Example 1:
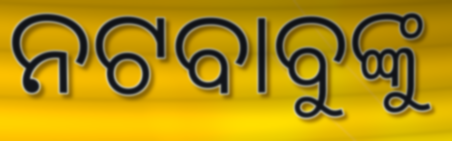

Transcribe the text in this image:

ନଟବାବୁଙ୍କୁ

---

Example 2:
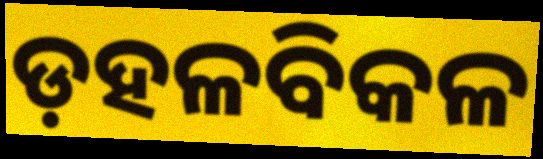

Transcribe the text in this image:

ଡ଼ହଳବିକଳ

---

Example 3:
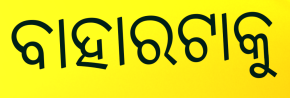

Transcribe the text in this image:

ବାହାରଟାକୁ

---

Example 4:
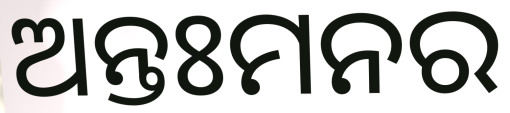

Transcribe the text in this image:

ଅନ୍ତଃମନର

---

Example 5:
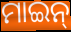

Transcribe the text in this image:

ମାଇନ୍